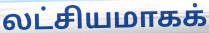
லட்சியமாகக்